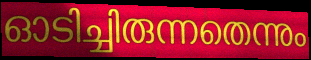
ഓടിച്ചിരുന്നതെന്നും